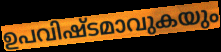
ഉപവിഷ്ടമാവുകയും